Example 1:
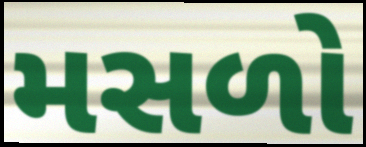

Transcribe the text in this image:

મસળો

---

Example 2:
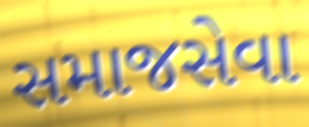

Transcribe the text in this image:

સમાજસેવા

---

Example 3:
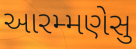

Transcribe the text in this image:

આરમ્મણેસુ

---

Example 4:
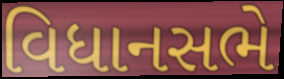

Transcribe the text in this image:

વિધાનસભે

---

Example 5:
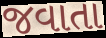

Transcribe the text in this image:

જવાતા